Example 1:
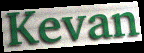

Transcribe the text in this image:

Kevan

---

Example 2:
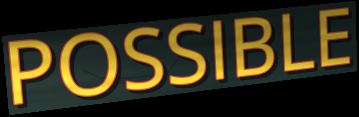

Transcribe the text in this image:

POSSIBLE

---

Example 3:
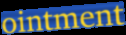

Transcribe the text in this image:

ointment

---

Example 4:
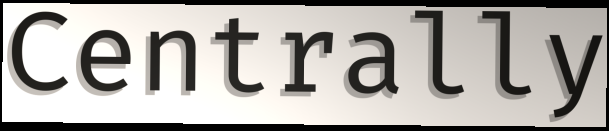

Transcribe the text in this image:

Centrally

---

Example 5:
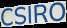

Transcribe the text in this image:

CSIRO